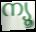
ന്യൂ